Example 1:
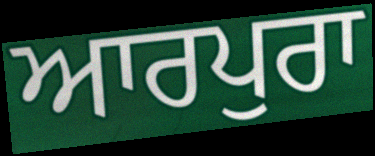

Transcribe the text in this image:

ਆਰਪੁਰਾ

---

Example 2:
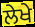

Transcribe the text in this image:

ਲੇਖੇ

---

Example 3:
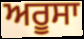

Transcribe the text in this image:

ਅਰੂਸਾ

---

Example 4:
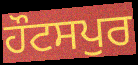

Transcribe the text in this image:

ਹੌਟਸਪੁਰ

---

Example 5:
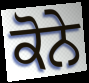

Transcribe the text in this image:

ਕੋਨੇ